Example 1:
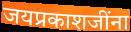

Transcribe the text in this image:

जयप्रकाशजींना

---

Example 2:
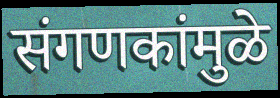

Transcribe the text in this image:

संगणकांमुळे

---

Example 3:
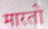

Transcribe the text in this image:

मारतो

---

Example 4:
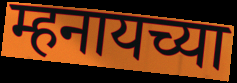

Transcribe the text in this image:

म्हनायच्या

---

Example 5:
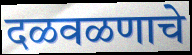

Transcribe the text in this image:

दळवळणाचे